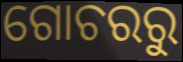
ଗୋଚରରୁ